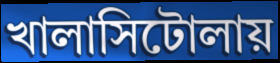
খালাসিটোলায়